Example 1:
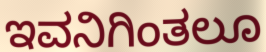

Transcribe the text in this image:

ಇವನಿಗಿಂತಲೂ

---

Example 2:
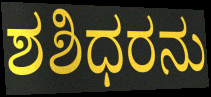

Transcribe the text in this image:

ಶಶಿಧರನು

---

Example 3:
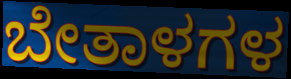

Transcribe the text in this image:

ಬೇತಾಳಗಳ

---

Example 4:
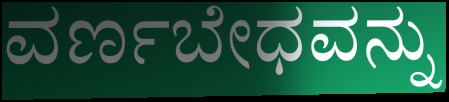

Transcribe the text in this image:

ವರ್ಣಬೇಧವನ್ನು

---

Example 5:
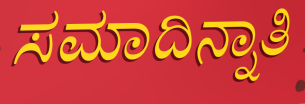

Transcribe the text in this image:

ಸಮಾದಿನ್ನಾತಿ